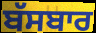
ਬੱਸਬਾਰ